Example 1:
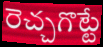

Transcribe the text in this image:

రెచ్చగొట్టే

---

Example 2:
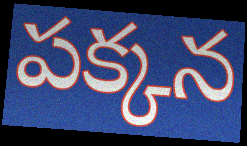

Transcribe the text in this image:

పక్కన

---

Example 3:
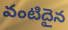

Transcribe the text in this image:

వంటిదైన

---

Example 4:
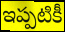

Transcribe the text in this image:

ఇప్పటికీ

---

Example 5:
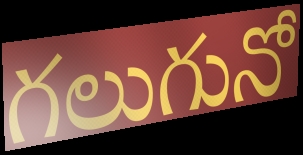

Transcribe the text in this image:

గలుగునో